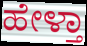
ಹೇಳ್ತಾ